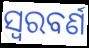
ସ୍ଵରବର୍ଣ